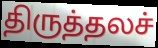
திருத்தலச்